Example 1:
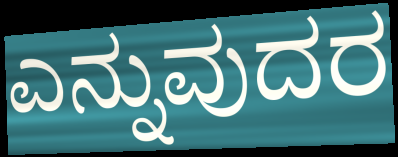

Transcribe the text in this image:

ಎನ್ನುವುದರ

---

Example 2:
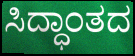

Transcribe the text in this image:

ಸಿದ್ಧಾಂತದ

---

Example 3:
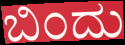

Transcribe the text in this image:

ಬಿಂದು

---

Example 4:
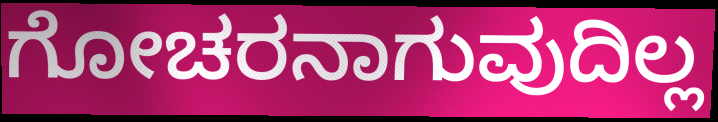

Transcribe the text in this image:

ಗೋಚರನಾಗುವುದಿಲ್ಲ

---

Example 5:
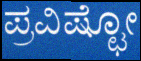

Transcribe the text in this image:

ಪ್ರವಿಷ್ಟೋ